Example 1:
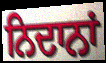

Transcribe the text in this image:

ਨਿਦਾਨਾਂ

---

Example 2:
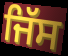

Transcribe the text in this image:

ਜਿੱਸ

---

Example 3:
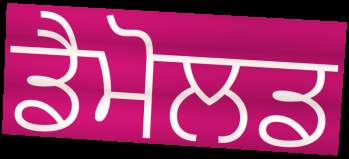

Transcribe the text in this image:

ਡੈਮੋਲਡ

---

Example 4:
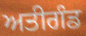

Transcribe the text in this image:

ਅਤੀਗੰਡ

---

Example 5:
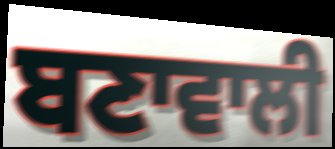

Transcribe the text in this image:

ਬਣਾਵਾਲੀ